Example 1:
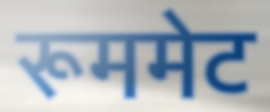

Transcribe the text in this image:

रूममेट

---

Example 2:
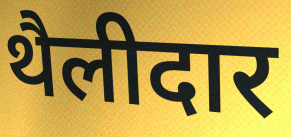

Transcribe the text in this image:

थैलीदार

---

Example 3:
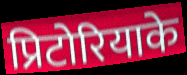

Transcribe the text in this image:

प्रिटोरियाके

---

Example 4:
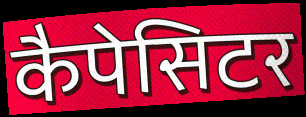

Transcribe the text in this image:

कैपेसिटर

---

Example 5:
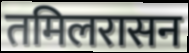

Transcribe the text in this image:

तमिलरासन